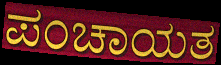
ಪಂಚಾಯತ